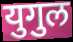
युगुल